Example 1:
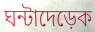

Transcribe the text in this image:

ঘন্টাদেড়েক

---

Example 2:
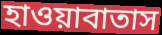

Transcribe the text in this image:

হাওয়াবাতাস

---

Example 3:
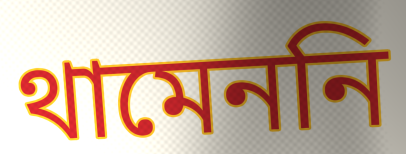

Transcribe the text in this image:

থামেননি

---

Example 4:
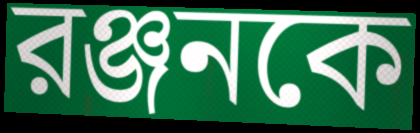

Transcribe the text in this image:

রঞ্জনকে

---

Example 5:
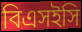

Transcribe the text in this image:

বিএসইসি